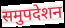
समुपदेशन